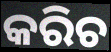
କରିଚ